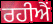
ਰਹੀਐਂ